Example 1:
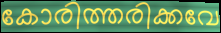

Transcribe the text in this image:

കോരിത്തരിക്കവേ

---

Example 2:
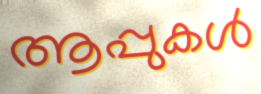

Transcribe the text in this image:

ആപ്പുകൾ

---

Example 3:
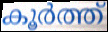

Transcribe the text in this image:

കൂർത്ത്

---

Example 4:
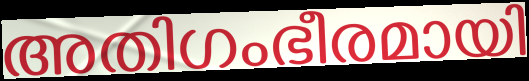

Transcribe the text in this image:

അതിഗംഭീരമായി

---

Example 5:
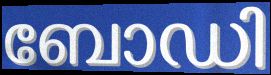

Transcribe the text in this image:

ബോഡി